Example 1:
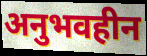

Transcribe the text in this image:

अनुभवहीन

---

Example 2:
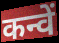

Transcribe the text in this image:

कन्वें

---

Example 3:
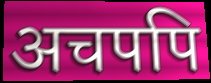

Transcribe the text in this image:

अचपपि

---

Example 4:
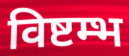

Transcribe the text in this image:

विष्टम्भ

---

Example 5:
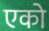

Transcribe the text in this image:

एको